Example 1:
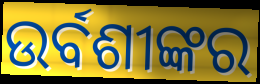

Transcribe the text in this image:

ଉର୍ବଶୀଙ୍କର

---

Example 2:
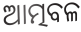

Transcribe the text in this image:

ଆତ୍ମବଳ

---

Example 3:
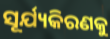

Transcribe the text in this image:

ସୂର୍ଯ୍ୟକିରଣକୁ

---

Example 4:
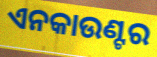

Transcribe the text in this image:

ଏନକାଉଣ୍ଟର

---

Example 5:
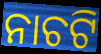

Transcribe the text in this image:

ନାଚଟି